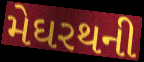
મેઘરથની